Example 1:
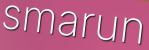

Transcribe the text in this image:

smarun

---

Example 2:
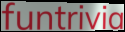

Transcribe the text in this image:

funtrivia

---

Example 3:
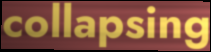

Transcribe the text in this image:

collapsing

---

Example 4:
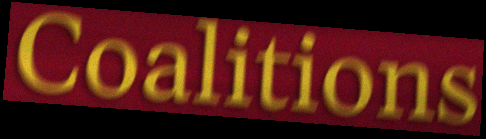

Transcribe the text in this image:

Coalitions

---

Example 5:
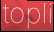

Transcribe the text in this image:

topli